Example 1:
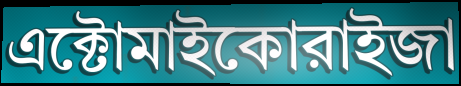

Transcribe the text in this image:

এক্টোমাইকোরাইজা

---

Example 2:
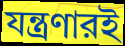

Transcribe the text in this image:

যন্ত্রণারই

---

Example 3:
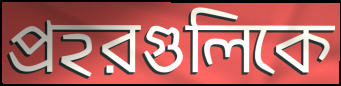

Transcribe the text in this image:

প্রহরগুলিকে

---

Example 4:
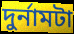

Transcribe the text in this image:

দুর্নামটা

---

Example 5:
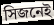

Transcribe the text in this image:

সিজনেই